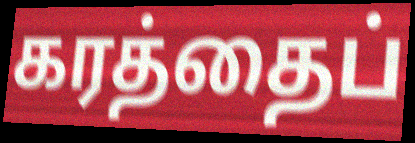
கரத்தைப்